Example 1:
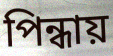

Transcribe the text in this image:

পিন্ধায়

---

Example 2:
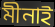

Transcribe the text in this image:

মীনাই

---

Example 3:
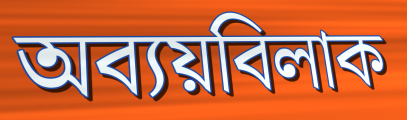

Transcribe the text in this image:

অব্যয়বিলাক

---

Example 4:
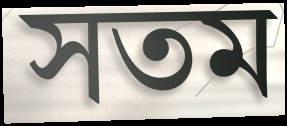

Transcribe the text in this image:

সতম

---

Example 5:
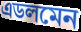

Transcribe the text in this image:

এডলমেন